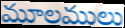
మూలములు